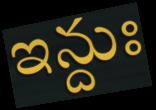
ఇన్దుః